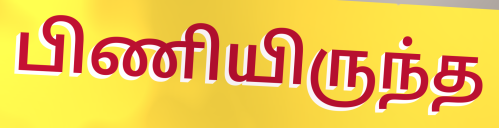
பிணியிருந்த